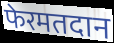
फेरमतदान